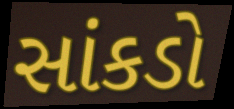
સાંકડો